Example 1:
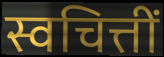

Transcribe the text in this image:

स्वचित्तीं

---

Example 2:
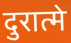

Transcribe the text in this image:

दुरात्मे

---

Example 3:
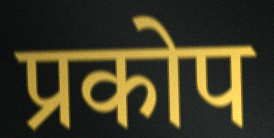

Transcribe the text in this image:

प्रकोप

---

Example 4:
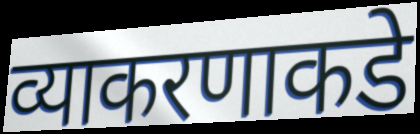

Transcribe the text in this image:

व्याकरणाकडे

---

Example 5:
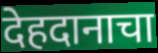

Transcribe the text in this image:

देहदानाचा